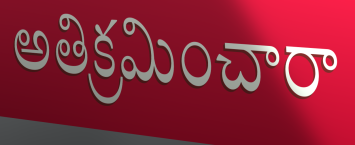
అతిక్రమించారా